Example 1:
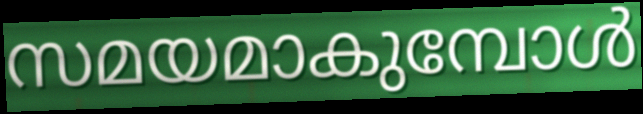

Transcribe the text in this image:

സമയമാകുമ്പോൾ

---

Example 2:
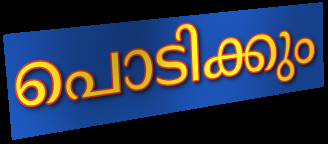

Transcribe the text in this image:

പൊടിക്കും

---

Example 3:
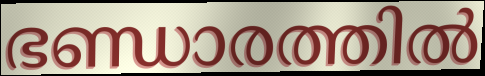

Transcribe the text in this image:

ഭണ്ഡാരത്തിൽ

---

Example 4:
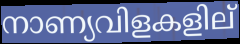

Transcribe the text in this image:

നാണ്യവിളകളില്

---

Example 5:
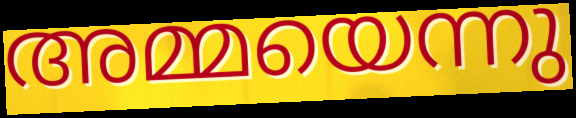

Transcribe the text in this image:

അമ്മയെന്നു